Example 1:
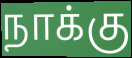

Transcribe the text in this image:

நாக்கு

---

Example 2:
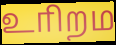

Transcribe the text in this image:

உரிறம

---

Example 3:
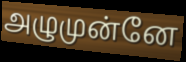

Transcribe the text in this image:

அழுமுன்னே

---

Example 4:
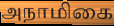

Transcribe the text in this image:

அநாமிகை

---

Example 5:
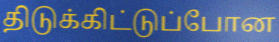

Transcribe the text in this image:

திடுக்கிட்டுப்போன